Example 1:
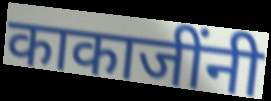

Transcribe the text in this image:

काकाजींनी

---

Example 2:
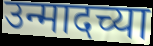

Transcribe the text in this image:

उन्मादच्या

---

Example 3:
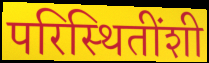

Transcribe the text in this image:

परिस्थितींशी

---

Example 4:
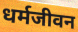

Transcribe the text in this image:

धर्मजीवन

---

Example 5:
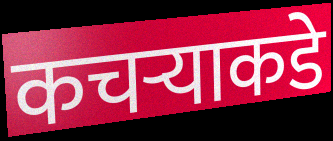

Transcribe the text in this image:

कचऱ्याकडे